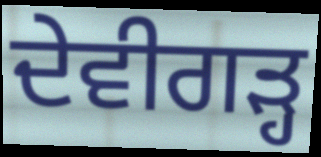
ਦੇਵੀਗੜ੍ਹ